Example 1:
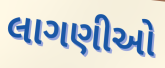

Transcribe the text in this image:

લાગણીઓ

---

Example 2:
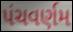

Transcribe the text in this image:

પંચવર્ણમ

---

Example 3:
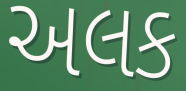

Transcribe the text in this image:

અલક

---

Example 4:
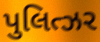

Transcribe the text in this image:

પુલિત્ઝર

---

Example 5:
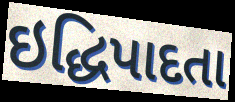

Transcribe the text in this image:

ઇદ્ધિપાદતા